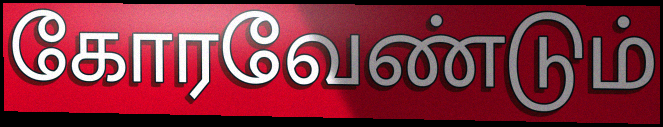
கோரவேண்டும்